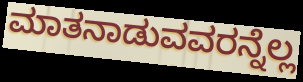
ಮಾತನಾಡುವವರನ್ನೆಲ್ಲ